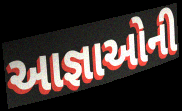
આજ્ઞાઓની